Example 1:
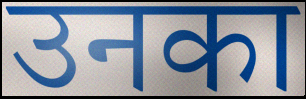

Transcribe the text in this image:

उनका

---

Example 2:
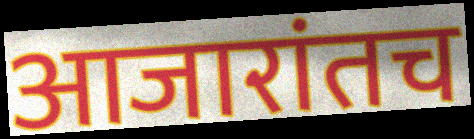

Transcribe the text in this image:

आजारांतच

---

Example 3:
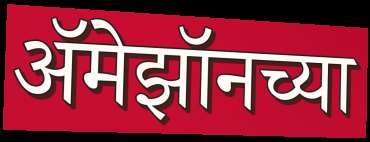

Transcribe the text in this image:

ॲमेझॉनच्या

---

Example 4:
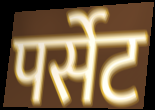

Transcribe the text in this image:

पर्सेट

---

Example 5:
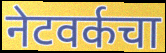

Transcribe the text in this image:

नेटवर्कचा